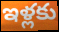
ఇళ్లకు